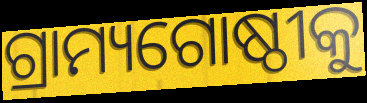
ଗ୍ରାମ୍ୟଗୋଷ୍ଠୀକୁ